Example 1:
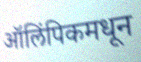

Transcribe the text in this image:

ऑलिंपिकमधून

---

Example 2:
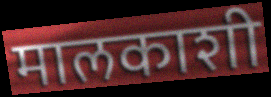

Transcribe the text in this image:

मालकाशी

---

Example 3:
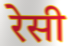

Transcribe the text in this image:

रेसी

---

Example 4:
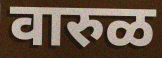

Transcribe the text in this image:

वारुळ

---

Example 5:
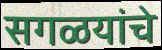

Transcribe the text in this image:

सगळयांचे